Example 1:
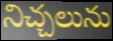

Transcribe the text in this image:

నిచ్చలును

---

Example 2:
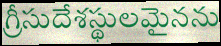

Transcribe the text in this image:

గ్రీసుదేశస్థులమైనను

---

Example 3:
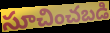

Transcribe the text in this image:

సూచించబడి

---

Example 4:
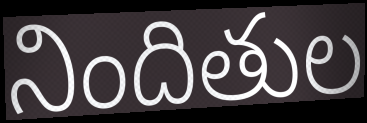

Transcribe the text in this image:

నిందితుల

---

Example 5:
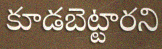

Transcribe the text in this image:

కూడబెట్టారని